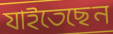
যাইতেছেন